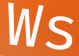
Ws